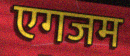
एगजम